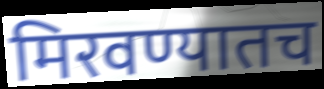
मिरवण्यातच